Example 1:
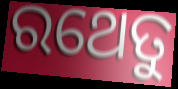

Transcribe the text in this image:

ରଥେତୁ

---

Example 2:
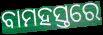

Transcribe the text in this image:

ବାମହସ୍ତରେ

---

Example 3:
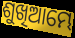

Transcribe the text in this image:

ଶୁଖିଆମ୍ଭେ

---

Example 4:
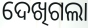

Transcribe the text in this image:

ଦେଖିଗଲା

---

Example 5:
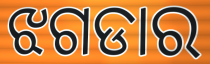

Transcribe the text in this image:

ଝଗଡାର